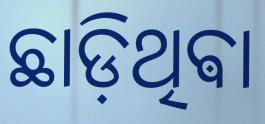
ଛାଡ଼ିଥିଵା